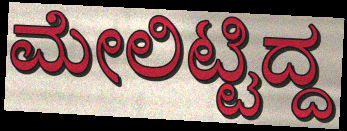
ಮೇಲಿಟ್ಟಿದ್ದ